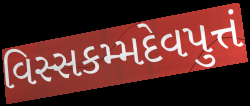
વિસ્સકમ્મદેવપુત્તં